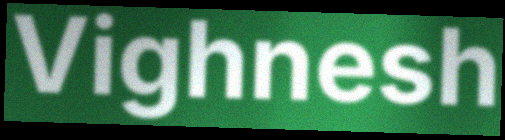
Vighnesh